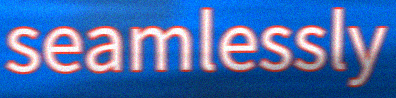
seamlessly